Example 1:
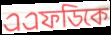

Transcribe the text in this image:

এএফডিকে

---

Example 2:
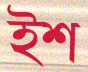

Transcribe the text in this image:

ইশ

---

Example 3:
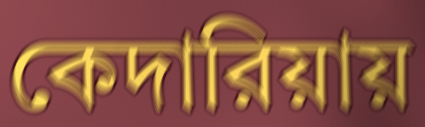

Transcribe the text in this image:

কেদারিয়ায়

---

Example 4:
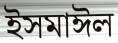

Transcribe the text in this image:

ইসমাঈল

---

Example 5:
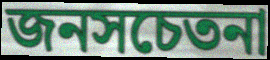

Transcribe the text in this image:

জনসচেতনা